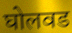
घोलवड